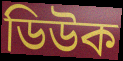
ডিউক